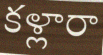
కళ్లారా